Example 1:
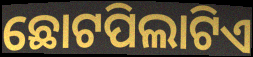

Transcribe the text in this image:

ଛୋଟପିଲାଟିଏ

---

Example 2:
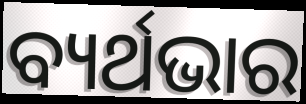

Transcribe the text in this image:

ବ୍ୟର୍ଥଭାର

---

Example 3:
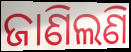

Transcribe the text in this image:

ଜାଣିଲଣି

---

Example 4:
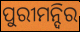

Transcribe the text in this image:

ପୁରୀମନ୍ଦିର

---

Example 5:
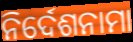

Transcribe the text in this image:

ନିର୍ଦେଶନାମା